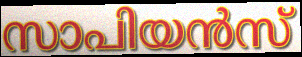
സാപിയൻസ്